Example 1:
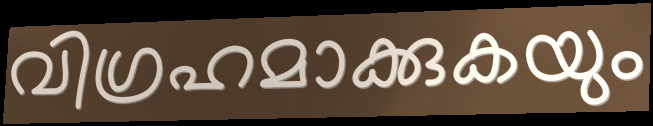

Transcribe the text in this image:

വിഗ്രഹമാക്കുകയും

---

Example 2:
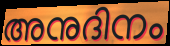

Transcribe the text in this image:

അനുദിനം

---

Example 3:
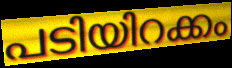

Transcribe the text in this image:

പടിയിറക്കം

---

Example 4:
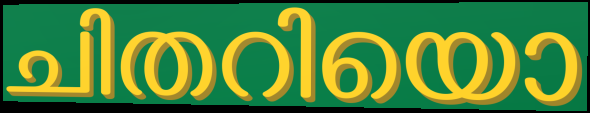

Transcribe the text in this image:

ചിതറിയൊ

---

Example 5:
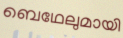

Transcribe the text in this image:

ബെഥേലുമായി